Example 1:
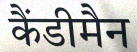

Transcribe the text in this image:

कैंडीमैन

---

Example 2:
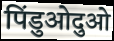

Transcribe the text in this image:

पिंडुओदुओ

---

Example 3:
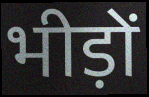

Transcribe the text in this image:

भीड़ों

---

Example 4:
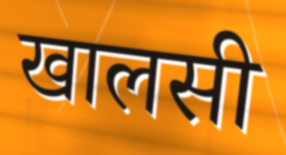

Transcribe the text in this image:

खालसी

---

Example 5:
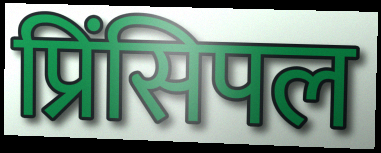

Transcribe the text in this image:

प्रिंसिपल